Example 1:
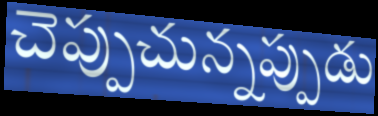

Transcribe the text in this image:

చెప్పుచున్నప్పుడు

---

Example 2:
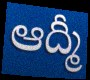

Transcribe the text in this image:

ఆద్మీ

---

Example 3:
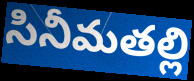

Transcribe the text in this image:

సినీమతల్లి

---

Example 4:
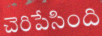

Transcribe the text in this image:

చెరిపేసింది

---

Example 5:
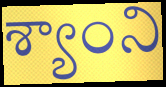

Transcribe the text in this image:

శ్యాంని